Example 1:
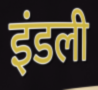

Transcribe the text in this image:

इंडली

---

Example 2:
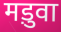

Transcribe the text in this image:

मड़ुवा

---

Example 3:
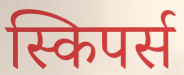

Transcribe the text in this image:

स्किपर्स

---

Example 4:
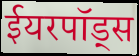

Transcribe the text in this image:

ईयरपॉड्स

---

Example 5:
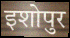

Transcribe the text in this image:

इशोपुर